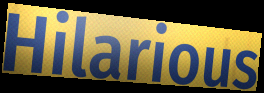
Hilarious